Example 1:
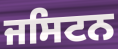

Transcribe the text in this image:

ਜਸਿਟਨ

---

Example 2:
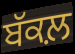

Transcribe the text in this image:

ਬੱਕਲ਼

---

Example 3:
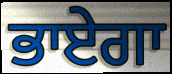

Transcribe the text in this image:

ਭਾਏਗਾ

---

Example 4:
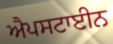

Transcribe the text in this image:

ਐਪਸਟਾਈਨ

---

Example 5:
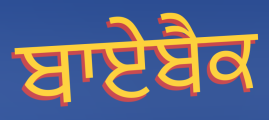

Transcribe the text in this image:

ਬਾਏਬੈਕ